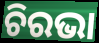
ଚିରଭା